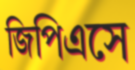
জিপিএসে